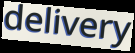
delivery